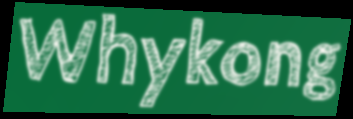
Whykong